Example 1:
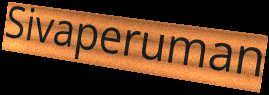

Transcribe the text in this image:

Sivaperuman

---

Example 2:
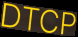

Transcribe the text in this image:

DTCP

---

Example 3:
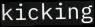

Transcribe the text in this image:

kicking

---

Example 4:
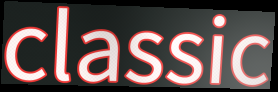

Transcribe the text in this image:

classic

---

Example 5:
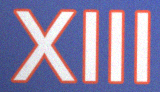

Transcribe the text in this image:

XIII